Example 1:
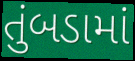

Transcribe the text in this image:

તુંબડામાં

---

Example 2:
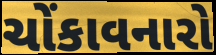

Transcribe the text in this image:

ચોંકાવનારો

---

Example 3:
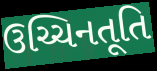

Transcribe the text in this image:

ઉચ્ચિનતૂતિ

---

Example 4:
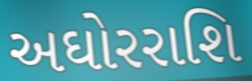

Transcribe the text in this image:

અઘોરરાશિ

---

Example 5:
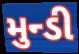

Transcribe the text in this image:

મુન્ડી